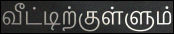
வீட்டிற்குள்ளும்